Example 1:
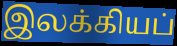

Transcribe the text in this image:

இலக்கியப்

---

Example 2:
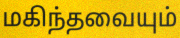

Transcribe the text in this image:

மகிந்தவையும்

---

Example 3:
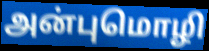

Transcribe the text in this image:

அன்புமொழி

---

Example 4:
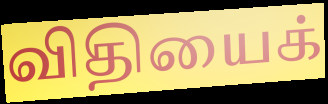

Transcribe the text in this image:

விதியைக்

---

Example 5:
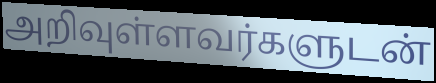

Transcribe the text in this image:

அறிவுள்ளவர்களுடன்